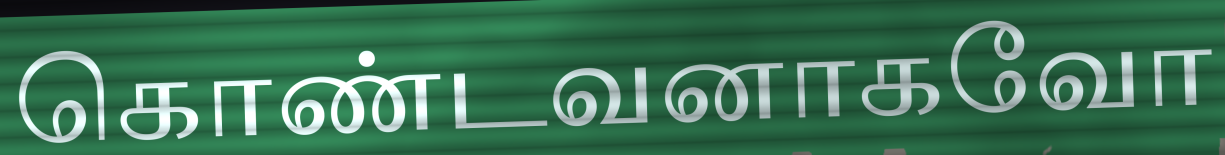
கொண்டவனாகவோ